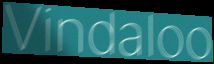
Vindaloo